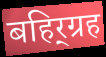
बहिर्ग्रह